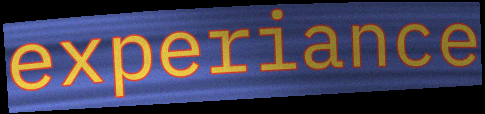
experiance